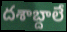
దశాబ్దాలే